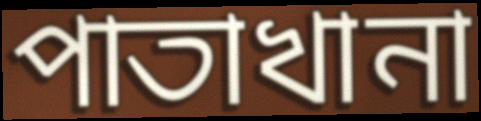
পাতাখানা